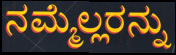
ನಮ್ಮೆಲ್ಲರನ್ನು